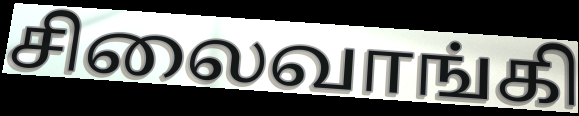
சிலைவாங்கி